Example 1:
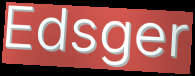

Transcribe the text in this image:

Edsger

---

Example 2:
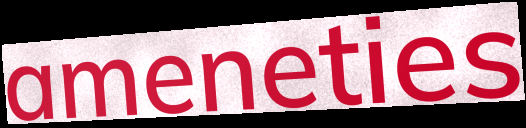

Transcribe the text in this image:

ameneties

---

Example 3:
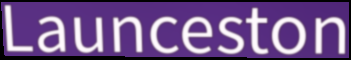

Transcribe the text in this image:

Launceston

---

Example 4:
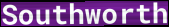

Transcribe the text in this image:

Southworth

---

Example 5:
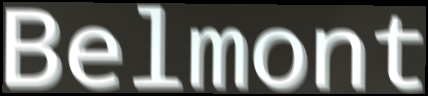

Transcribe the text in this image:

Belmont